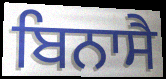
ਬਿਨਾਸੈ